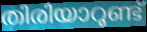
തിരിയാറുണ്ട്